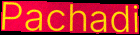
Pachadi